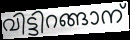
വിട്ടിറങ്ങാന്